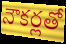
నౌకర్లతో